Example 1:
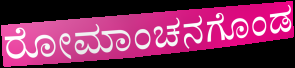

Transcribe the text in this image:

ರೋಮಾಂಚನಗೊಂಡ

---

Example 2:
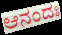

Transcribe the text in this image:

ಆನಂದಃ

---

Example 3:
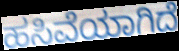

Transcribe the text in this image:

ಹಸಿವೆಯಾಗಿದೆ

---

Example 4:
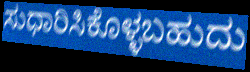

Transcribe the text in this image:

ಸುಧಾರಿಸಿಕೊಳ್ಳಬಹುದು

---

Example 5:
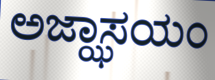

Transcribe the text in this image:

ಅಜ್ಝಾಸಯಂ